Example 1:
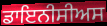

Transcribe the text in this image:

ਡਾਇਨੀਸੀਅਸ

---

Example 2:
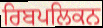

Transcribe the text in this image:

ਰਿਬਪਲਿਕਨ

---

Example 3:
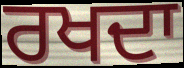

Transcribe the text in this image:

ਰਖਦਾ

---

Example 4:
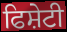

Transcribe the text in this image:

ਫਿਸ਼ੇਟੀ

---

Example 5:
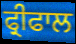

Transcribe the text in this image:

ਫ੍ਰੀਫਾਲ